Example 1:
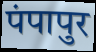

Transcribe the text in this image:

पंपापुर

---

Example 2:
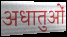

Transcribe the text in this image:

अधातुओं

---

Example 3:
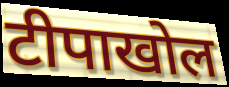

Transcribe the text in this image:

टीपाखोल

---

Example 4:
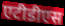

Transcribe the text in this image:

एटीडीएस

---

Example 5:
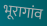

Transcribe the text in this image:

भूरागांव